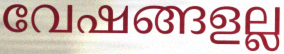
വേഷങ്ങളല്ല